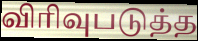
விரிவுபடுத்த